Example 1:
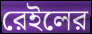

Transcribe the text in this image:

রেইলের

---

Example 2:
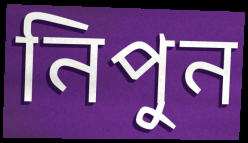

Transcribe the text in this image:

নিপুন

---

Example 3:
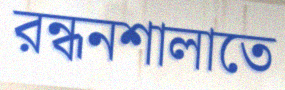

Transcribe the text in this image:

রন্ধনশালাতে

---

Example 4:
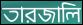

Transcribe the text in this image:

তারজালি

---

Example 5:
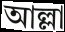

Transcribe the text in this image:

আল্লা